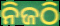
ନିଜଠି